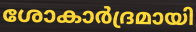
ശോകാർദ്രമായി